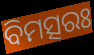
ବିମତ୍ସରଃ